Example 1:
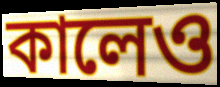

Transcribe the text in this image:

কালেও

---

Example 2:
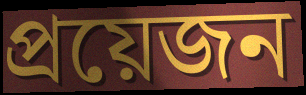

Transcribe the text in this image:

প্রয়েজন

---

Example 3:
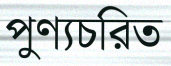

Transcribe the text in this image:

পুণ্যচরিত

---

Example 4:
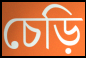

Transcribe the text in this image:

চেড়ি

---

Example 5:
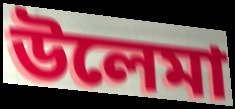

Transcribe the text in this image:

উলেমা